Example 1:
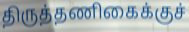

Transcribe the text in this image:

திருத்தணிகைக்குச்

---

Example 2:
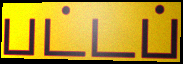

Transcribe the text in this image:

பட்டப்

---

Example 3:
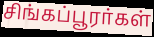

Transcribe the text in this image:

சிங்கப்பூரர்கள்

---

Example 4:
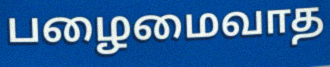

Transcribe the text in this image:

பழைமைவாத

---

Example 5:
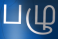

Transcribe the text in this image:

பழு